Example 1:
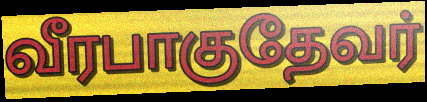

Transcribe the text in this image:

வீரபாகுதேவர்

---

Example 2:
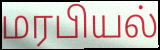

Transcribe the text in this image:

மரபியல்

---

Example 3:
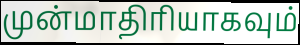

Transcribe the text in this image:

முன்மாதிரியாகவும்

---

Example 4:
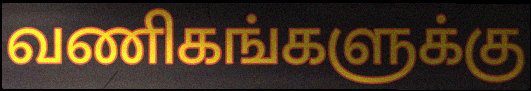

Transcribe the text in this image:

வணிகங்களுக்கு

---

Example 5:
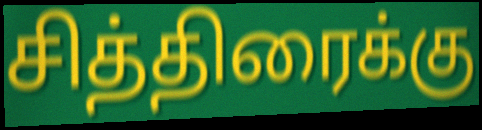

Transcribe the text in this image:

சித்திரைக்கு